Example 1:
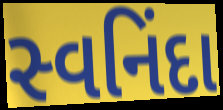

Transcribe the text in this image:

સ્વનિંદા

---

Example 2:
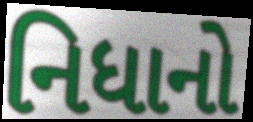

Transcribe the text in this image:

નિધાનો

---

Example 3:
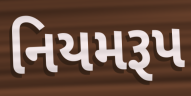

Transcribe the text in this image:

નિયમરૂપ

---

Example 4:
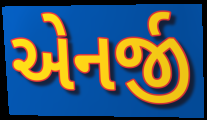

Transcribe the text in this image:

એનર્જી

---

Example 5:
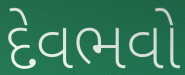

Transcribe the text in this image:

દેવભવો